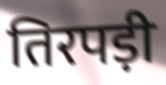
तिरपड़ी